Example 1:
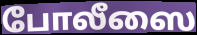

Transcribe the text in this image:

போலீஸை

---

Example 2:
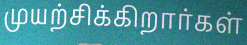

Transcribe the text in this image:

முயற்சிக்கிறார்கள்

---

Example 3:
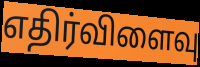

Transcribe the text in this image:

எதிர்விளைவு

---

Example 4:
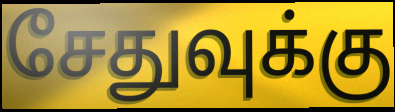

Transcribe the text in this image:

சேதுவுக்கு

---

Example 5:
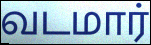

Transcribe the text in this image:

வடமார்